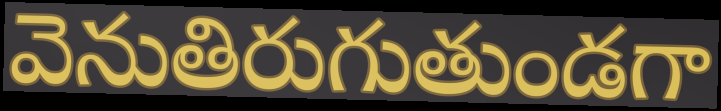
వెనుతిరుగుతుండగా